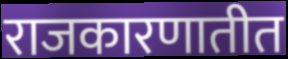
राजकारणातीत